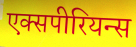
एक्सपीरियन्स